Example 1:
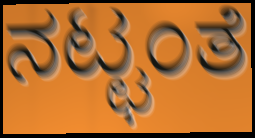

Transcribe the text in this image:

ನಟ್ಟಂತೆ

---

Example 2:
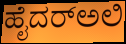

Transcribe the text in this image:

ಹೈದರ್‌ಅಲಿ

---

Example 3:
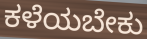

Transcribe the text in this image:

ಕಳೆಯಬೇಕು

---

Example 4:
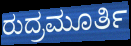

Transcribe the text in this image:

ರುದ್ರಮೂರ್ತಿ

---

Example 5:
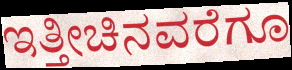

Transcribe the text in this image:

ಇತ್ತೀಚಿನವರೆಗೂ